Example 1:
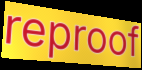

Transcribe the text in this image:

reproof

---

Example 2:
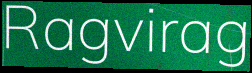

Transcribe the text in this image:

Ragvirag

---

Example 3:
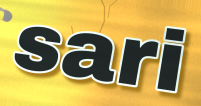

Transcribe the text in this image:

sari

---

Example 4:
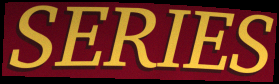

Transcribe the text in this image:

SERIES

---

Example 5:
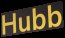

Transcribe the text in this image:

Hubb